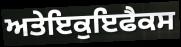
ਅਤੇਇਕੁਇਫੈਕਸ